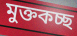
মুক্তকচ্ছ